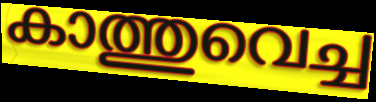
കാത്തുവെച്ച